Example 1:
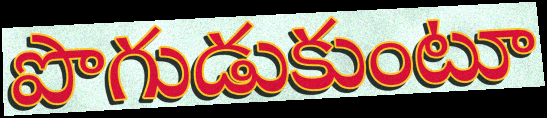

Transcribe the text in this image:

పొగుడుకుంటూ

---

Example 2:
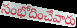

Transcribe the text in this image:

సంభోదించేవారు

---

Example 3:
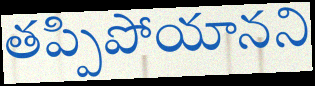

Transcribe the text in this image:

తప్పిపోయానని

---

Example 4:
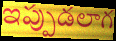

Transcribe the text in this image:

ఇప్పుడలాగ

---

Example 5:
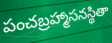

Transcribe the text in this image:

పంచబ్రహ్మాసనస్థితా